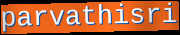
parvathisri